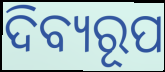
ଦିବ୍ୟରୂପ